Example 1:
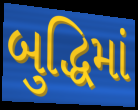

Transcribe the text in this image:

બુદ્ધિમાં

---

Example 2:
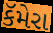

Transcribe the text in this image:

કૅમેરા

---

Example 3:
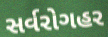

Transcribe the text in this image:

સર્વરોગહર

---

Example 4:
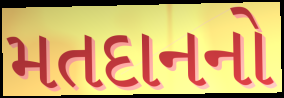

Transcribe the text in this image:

મતદાનનો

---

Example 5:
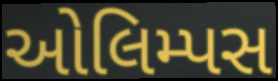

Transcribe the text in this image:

ઓલિમ્પસ